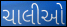
ચાલીઓ